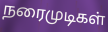
நரைமுடிகள்